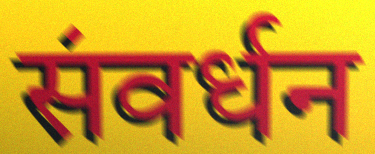
संवर्धन